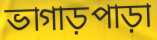
ভাগাড়পাড়া